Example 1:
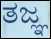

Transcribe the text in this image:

ತಜ್ಞ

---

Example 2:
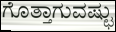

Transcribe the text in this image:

ಗೊತ್ತಾಗುವಷ್ಟು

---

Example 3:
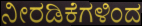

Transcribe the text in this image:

ನೀರಡಿಕೆಗಳಿಂದ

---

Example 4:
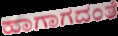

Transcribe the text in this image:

ಹಾಗಾಗದಂತೆ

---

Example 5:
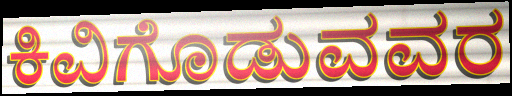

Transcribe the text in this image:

ಕಿವಿಗೊಡುವವರ